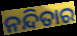
ନନ୍ଦିତାର